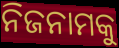
ନିଜନାମକୁ